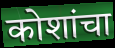
कोशांचा